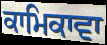
ਕਾਮਿਕਾਵਾ